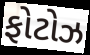
ફોટોઝ